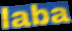
laba